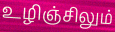
உழிஞ்சிலும்